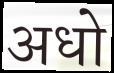
अधो